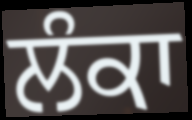
ਲੰਕਾ